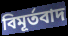
বিমূর্তবাদ